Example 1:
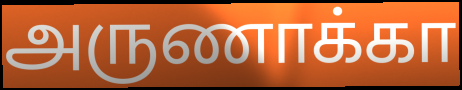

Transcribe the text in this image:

அருணாக்கா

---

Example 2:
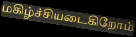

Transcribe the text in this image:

மகிழ்ச்சியடைகிறோம்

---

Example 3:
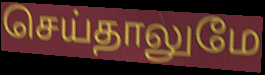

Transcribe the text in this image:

செய்தாலுமே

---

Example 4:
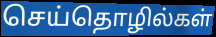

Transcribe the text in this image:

செய்தொழில்கள்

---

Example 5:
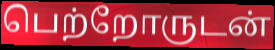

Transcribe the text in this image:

பெற்றோருடன்